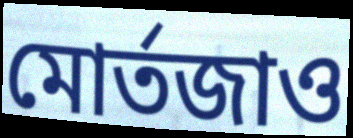
মোর্তজাও